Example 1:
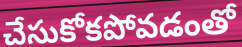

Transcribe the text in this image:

చేసుకోకపోవడంతో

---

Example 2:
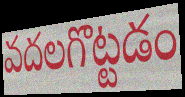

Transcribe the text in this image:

వదలగొట్టడం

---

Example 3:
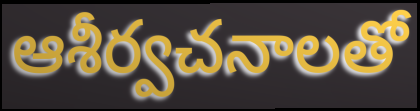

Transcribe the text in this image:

ఆశీర్వచనాలతో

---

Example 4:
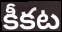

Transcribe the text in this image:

కీకట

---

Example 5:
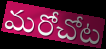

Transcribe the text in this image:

మరోచోట